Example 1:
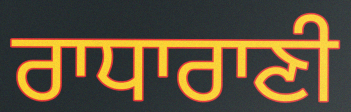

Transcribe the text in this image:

ਰਾਧਾਰਾਣੀ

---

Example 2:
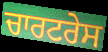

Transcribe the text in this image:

ਚਾਰਟਰੇਸ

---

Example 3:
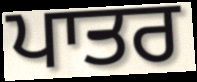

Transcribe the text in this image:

ਪਾਤਰ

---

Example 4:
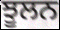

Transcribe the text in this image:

ਝੂਲਨ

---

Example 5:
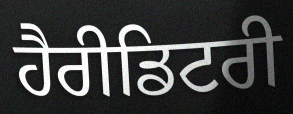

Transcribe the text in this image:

ਹੈਰੀਡਿਟਰੀ